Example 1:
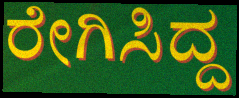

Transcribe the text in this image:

ರೇಗಿಸಿದ್ದ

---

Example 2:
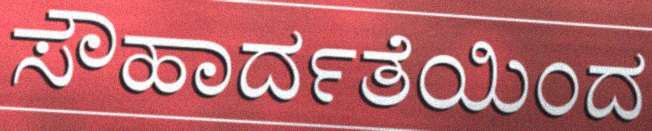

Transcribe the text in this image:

ಸೌಹಾರ್ದತೆಯಿಂದ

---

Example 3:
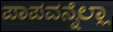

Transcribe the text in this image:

ಪಾಪವನ್ನೆಲ್ಲಾ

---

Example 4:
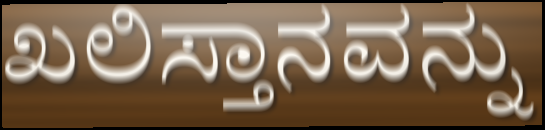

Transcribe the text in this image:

ಖಲಿಸ್ತಾನವನ್ನು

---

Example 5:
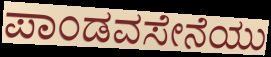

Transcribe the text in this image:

ಪಾಂಡವಸೇನೆಯು